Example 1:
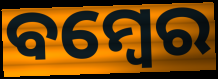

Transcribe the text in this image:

ବମ୍ବେର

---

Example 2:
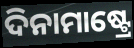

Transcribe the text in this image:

ଦିନାମାଷ୍ଟ୍ରେ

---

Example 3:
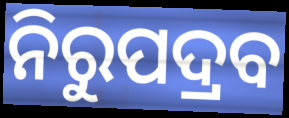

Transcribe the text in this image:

ନିରୁପଦ୍ରବ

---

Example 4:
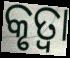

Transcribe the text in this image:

କୃତ୍ଵା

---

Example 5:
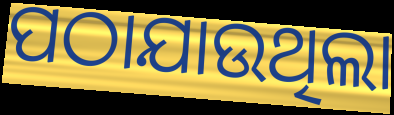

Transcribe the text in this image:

ପଠାଯାଉଥିଲା